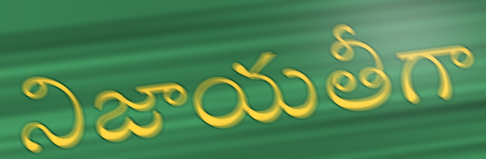
నిజాయతీగా